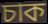
চাক